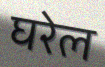
घरेल